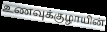
உணவுக்குழாயின்